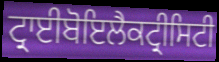
ਟ੍ਰਾਈਬੋਇਲੈਕਟ੍ਰੀਸਿਟੀ